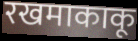
रखमाकाकू